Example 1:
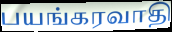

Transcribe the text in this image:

பயங்கரவாதி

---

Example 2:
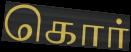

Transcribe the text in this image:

கொர்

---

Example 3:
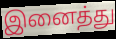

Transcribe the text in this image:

இனைத்து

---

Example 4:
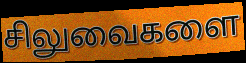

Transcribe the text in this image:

சிலுவைகளை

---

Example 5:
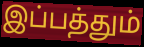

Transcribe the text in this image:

இப்பத்தும்